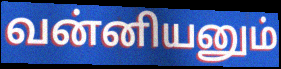
வன்னியனும்